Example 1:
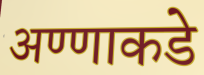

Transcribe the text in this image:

अण्णाकडे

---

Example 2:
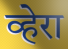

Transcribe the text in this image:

व्हेरा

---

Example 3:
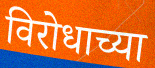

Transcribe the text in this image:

विरोधाच्या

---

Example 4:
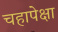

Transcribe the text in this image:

चहापेक्षा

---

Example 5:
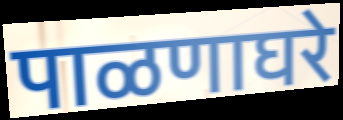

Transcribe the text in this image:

पाळणाघरे